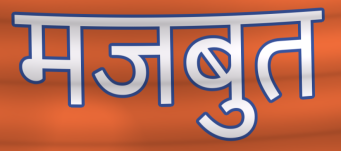
मजबुत